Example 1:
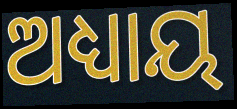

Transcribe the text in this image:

ଅଧ୍ୟାୟ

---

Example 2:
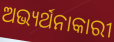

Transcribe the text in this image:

ଅଭ୍ୟର୍ଥନାକାରୀ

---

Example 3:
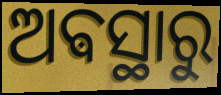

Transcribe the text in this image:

ଅଵସ୍ଥାରୁ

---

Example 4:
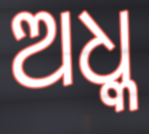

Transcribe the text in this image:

ଅଧ୍କ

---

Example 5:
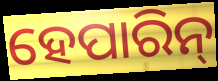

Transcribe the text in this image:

ହେପାରିନ୍